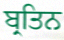
ਬ੍ਰਤਿਨ